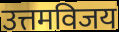
उत्तमविजय